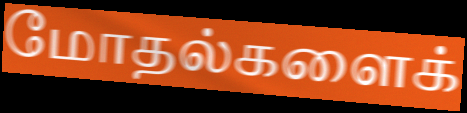
மோதல்களைக்